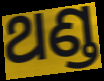
ଥଣ୍ଡ